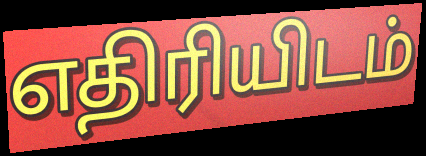
எதிரியிடம்